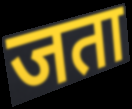
जता